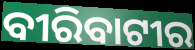
ବୀରିବାଟୀର